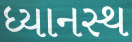
ધ્યાનસ્થ